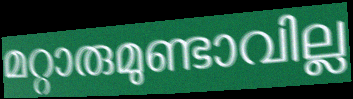
മറ്റാരുമുണ്ടാവില്ല